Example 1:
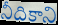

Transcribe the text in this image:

నీదికాని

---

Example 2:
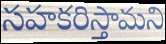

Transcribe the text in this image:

సహకరిస్తామని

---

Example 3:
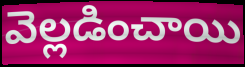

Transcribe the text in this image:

వెల్లడించాయి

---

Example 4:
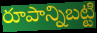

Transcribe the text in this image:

రూపాన్నిబట్టి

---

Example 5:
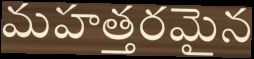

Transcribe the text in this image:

మహత్తరమైన